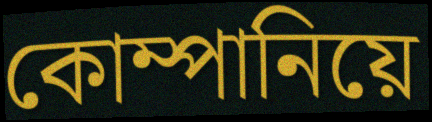
কোম্পানিয়ে